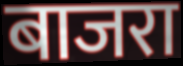
बाजरा